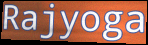
Rajyoga